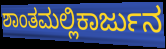
ಶಾಂತಮಲ್ಲಿಕಾರ್ಜುನ